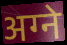
अग्ने